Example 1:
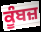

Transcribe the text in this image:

ਕੂੰਬਜ਼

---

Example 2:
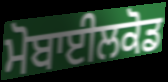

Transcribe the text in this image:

ਮੋਬਾਈਲਕੋਡ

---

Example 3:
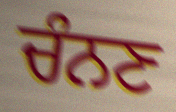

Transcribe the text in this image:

ਚੰਨਣ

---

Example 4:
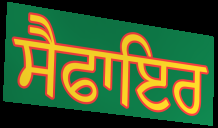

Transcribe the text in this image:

ਸੈਫਾਇਰ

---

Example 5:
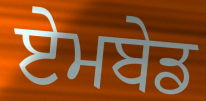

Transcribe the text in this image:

ਏਮਬੇਡ